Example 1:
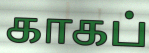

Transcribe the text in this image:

காகப்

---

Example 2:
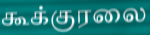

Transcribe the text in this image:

கூக்குரலை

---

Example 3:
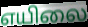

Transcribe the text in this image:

எயிலை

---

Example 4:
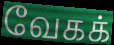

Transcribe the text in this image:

வேகக்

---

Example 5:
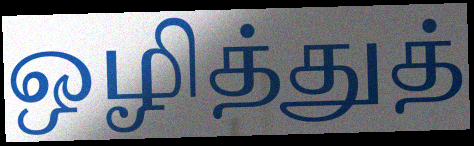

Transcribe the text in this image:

ஒழித்துத்